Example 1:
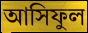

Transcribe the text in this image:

আসিফুল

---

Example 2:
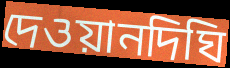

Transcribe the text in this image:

দেওয়ানদিঘি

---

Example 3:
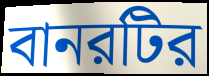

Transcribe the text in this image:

বানরটির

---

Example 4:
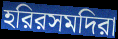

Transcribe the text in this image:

হরিরসমদিরা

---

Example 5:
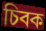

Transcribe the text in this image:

চিবক